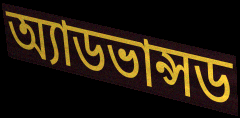
অ্যাডভান্সড